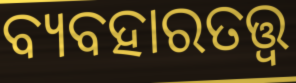
ବ୍ୟବହାରତତ୍ତ୍ବ